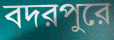
বদরপুরে